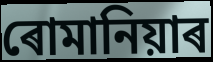
ৰোমানিয়াৰ